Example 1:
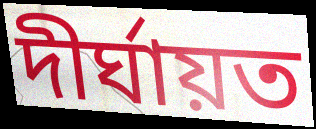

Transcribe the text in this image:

দীর্ঘায়ত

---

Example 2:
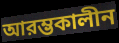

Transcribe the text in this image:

আরম্ভকালীন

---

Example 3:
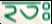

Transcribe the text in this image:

হতঃ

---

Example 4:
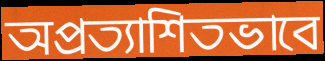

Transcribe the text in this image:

অপ্রত্যাশিতভাবে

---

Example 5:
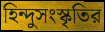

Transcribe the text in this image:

হিন্দুসংস্কৃতির